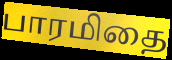
பாரமிதை